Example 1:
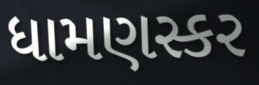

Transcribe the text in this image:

ધામણસ્કર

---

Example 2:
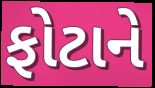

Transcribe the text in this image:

ફોટાને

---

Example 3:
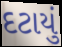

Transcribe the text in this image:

દટાયું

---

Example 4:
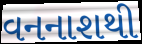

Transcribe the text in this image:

વનનાશથી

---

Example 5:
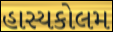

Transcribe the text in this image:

હાસ્યકોલમ